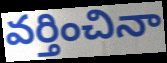
వర్తించినా